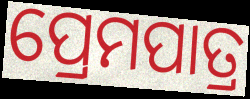
ପ୍ରେମପାତ୍ର